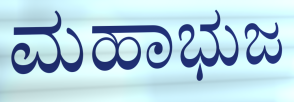
ಮಹಾಭುಜ